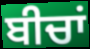
ਬੀਚਾਂ